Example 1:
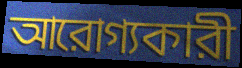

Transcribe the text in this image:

আরোগ্যকারী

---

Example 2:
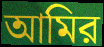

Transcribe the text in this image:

আমির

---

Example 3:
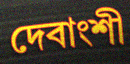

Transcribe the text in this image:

দেবাংশী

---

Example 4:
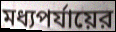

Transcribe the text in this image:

মধ্যপর্যায়ের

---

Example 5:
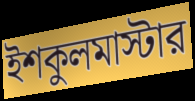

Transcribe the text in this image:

ইশকুলমাস্টার